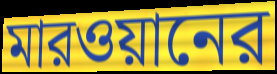
মারওয়ানের